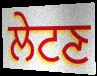
ਲੇਟਣ